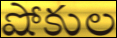
షోకుల